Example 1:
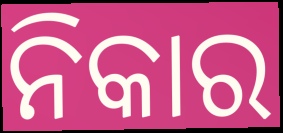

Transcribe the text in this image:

ନିକାର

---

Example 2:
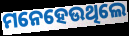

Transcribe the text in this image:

ମନେହେଉଥିଲେ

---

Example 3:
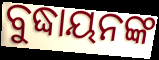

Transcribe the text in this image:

ବୁଦ୍ଧାୟନଙ୍କ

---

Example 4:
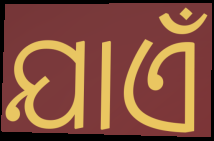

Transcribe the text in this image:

ଯାଏଁ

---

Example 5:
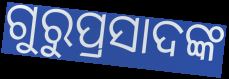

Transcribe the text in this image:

ଗୁରୁପ୍ରସାଦଙ୍କ